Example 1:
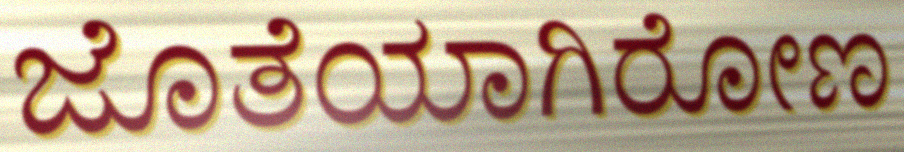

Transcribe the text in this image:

ಜೊತೆಯಾಗಿರೋಣ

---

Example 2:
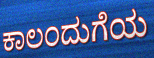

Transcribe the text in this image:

ಕಾಲಂದುಗೆಯ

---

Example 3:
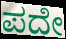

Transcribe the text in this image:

ಪದೇ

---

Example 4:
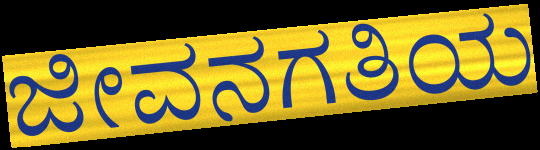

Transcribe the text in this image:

ಜೀವನಗತಿಯ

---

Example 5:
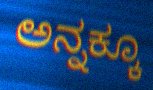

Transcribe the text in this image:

ಅನ್ನಕ್ಕೂ